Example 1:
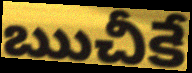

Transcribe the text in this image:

ఋచీకే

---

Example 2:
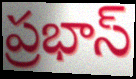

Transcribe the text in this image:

ప్రభాస్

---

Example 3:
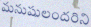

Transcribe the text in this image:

మనుషులందరిని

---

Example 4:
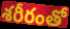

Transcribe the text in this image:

శరీరంతో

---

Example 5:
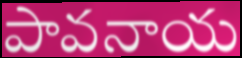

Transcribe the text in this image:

పావనాయ